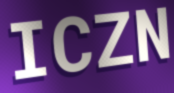
ICZN